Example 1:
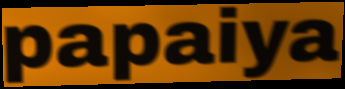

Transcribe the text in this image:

papaiya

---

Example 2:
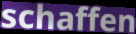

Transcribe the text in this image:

schaffen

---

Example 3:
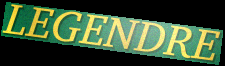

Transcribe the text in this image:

LEGENDRE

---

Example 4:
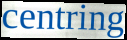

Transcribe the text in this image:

centring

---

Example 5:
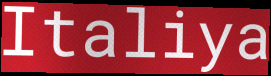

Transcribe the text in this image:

Italiya